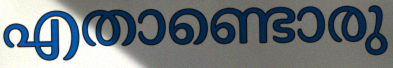
എതാണ്ടൊരു